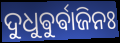
ଦୁଧୁଵୁର୍ଵାଜିନଃ